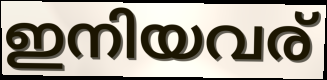
ഇനിയവര്